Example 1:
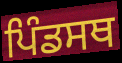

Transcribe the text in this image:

ਪਿੰਡਸਥ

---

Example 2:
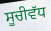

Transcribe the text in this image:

ਸੂਚੀਵੱਧ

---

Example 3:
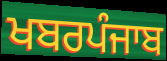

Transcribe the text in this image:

ਖਬਰਪੰਜਾਬ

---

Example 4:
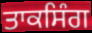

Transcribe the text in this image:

ਤਾਕਸਿੰਗ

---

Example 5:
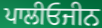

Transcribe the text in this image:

ਪਾਲੀਓਜੀਨ